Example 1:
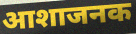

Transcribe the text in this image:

आशाजनक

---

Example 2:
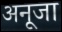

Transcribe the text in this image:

अनूजा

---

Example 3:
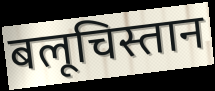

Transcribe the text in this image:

बलूचिस्‍तान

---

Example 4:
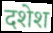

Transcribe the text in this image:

दशेश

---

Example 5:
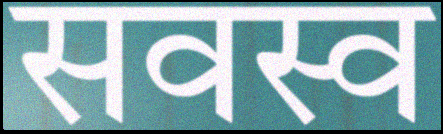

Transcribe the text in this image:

सवस्व